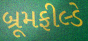
બ્રૂમફીલ્ડે